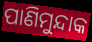
ପାଣିମୁନ୍ଦାକ